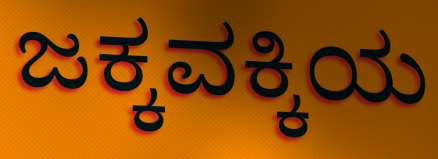
ಜಕ್ಕವಕ್ಕಿಯ